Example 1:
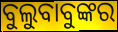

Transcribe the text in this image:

ବୁଲୁବାବୁଙ୍କର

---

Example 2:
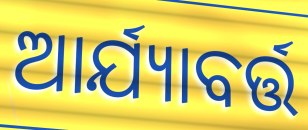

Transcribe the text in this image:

ଆର୍ଯ୍ୟାବର୍ତ୍ତ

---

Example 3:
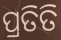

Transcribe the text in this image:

ପ୍ରତିତି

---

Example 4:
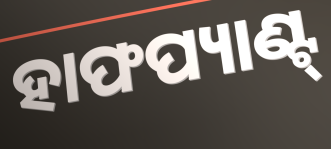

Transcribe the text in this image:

ହାଫପ୍ୟାଣ୍ଟ୍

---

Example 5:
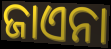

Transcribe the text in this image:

ଜାଏନା